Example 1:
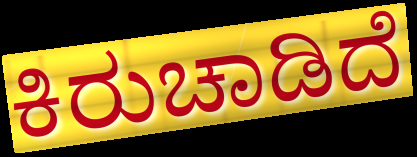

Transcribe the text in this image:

ಕಿರುಚಾಡಿದೆ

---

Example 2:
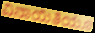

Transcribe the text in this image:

ವಿನಾಯಿತಿಯೂ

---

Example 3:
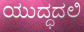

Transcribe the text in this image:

ಯುದ್ಧದಲಿ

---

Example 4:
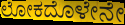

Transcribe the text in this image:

ಲೋಕದೊಳೇನೇ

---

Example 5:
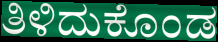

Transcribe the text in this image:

ತಿಳಿದುಕೊಂಡ